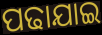
ପଢାଯାଇ